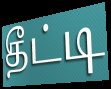
தீட்டி